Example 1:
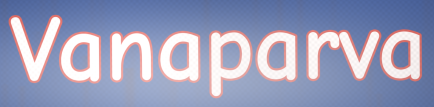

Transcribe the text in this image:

Vanaparva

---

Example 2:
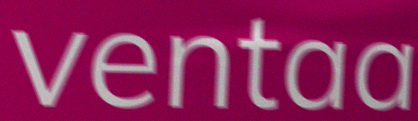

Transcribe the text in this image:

ventaa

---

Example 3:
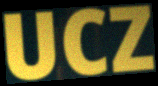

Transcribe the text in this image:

UCZ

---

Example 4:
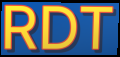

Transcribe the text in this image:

RDT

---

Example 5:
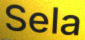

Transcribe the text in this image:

Sela